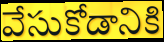
వేసుకోడానికి